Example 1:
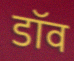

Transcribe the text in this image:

डॉव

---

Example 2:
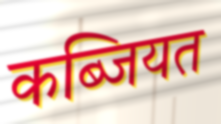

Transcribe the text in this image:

कब्जियत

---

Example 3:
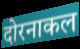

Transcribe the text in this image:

दोरनाकल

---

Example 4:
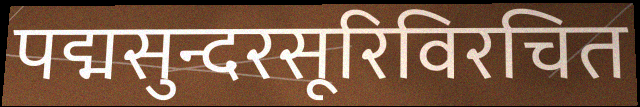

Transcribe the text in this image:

पद्मसुन्दरसूरिविरचित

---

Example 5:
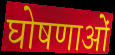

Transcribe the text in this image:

घोषणाओं